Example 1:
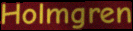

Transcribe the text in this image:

Holmgren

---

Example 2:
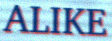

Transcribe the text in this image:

ALIKE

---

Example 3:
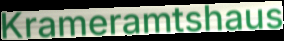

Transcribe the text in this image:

Krameramtshaus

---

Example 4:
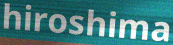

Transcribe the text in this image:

hiroshima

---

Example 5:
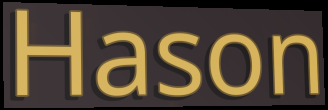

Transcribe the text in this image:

Hason